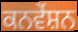
ਕਨਵੇਂਸ਼ਨ